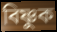
বিষ্ণুক